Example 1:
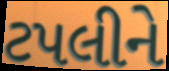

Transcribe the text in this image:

ટપલીને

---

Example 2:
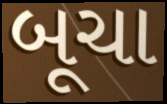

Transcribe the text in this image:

બૂચા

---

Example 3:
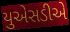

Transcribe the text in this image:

યુએસડીએ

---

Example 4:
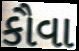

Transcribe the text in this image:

કૌવા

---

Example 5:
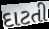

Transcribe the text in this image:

દાટતી